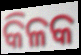
କିଳକ